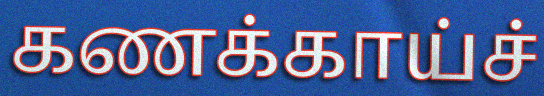
கணக்காய்ச்